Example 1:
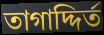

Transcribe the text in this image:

তাগাদ্দির্ত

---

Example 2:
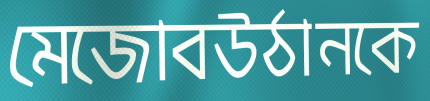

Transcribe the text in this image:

মেজোবউঠানকে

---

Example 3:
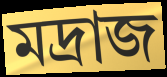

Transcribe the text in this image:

মদ্রাজ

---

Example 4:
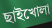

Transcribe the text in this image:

ছাইখোলা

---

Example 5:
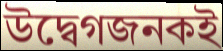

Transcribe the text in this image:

উদ্বেগজনকই